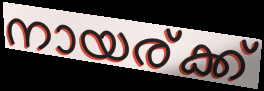
നായര്ക്ക്